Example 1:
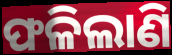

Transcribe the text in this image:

ଫଳିଲାଣି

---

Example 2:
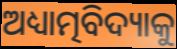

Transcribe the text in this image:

ଅଧ୍ୟାତ୍ମବିଦ୍ୟାକୁ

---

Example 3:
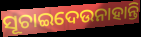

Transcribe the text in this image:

ସୂଚାଇଦେଉନାହାନ୍ତି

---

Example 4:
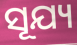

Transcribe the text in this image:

ସୂଯ୍ୟ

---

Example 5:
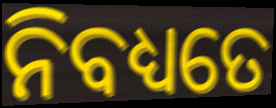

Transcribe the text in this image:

ନିବଧ୍ୟତେ